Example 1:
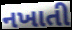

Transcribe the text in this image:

નખાતી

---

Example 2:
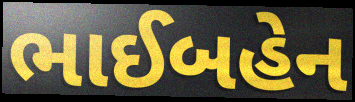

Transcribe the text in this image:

ભાઈબહેન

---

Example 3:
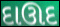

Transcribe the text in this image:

દાઊદ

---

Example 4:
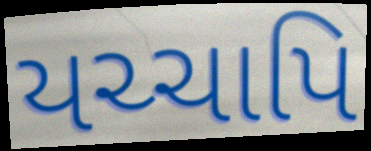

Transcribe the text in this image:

યચ્ચાપિ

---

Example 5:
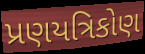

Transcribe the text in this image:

પ્રણયત્રિકોણ